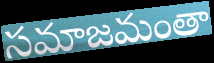
సమాజమంతా